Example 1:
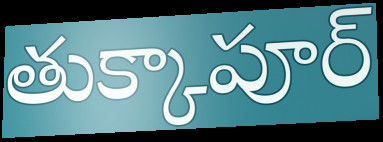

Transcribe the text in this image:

తుక్కాపూర్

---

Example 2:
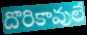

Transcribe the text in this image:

దొరికావులే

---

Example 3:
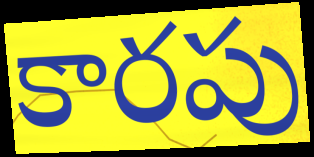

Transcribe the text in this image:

కారపు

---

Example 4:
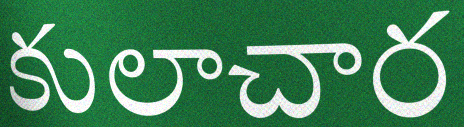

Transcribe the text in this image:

కులాచార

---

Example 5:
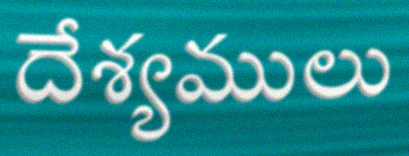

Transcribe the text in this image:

దేశ్యములు